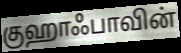
குஹாஃபாவின்